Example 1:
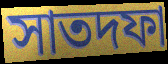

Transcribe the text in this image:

সাতদফা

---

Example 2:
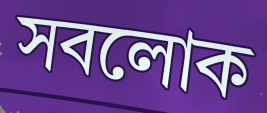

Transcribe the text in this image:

সবলোক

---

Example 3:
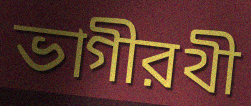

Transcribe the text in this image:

ভাগীরথী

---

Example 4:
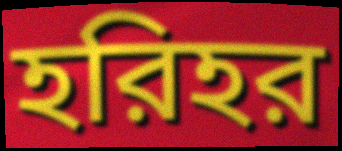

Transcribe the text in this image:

হরিহর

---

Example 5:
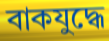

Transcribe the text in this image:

বাকযুদ্ধে